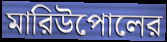
মারিউপোলের